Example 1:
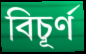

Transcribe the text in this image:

বিচূর্ণ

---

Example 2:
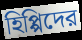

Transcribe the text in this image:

হিপ্পিদের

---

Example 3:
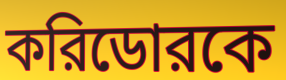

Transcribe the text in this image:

করিডোরকে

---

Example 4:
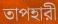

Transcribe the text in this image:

তাপহারী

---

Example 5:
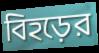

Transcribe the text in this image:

বিহড়ের